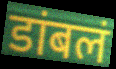
डांबलं